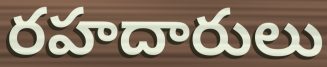
రహదారులు